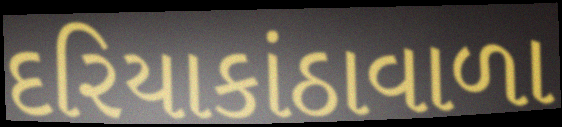
દરિયાકાંઠાવાળા